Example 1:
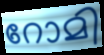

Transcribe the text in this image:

റോമി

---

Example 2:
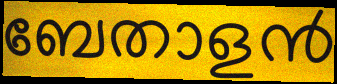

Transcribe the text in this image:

ബേതാളൻ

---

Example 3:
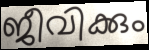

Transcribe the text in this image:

ജീവിക്കും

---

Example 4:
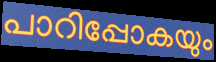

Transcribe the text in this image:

പാറിപ്പോകയും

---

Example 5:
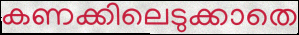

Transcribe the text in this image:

കണക്കിലെടുക്കാതെ